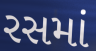
રસમાં